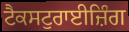
ਟੈਕਸਟੁਰਾਈਜ਼ਿੰਗ